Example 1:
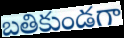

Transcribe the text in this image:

బతికుండగా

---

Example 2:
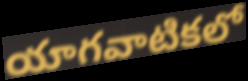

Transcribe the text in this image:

యాగవాటికలో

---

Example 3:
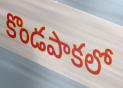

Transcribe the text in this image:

కొండపాకలో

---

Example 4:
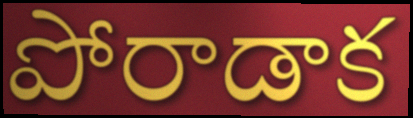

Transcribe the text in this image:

పోరాడాక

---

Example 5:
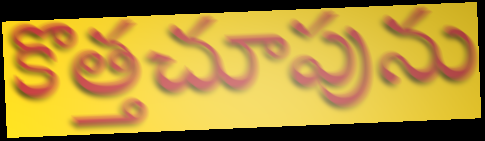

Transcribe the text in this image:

కొత్తచూపును